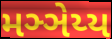
મઞ્ઞેય્ય